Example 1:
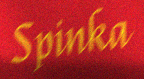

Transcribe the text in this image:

Spinka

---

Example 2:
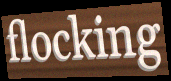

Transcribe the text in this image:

flocking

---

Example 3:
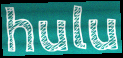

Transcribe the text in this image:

hulu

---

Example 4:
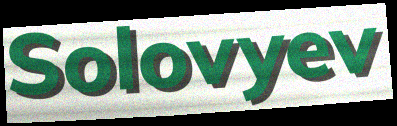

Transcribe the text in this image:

Solovyev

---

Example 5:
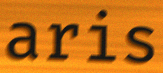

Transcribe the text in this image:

aris